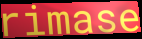
rimase